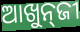
ଆଖୁନ୍‌ଜୀ